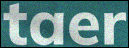
taer